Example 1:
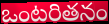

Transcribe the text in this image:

ఒంటరితనం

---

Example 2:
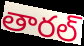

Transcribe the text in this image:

తారల్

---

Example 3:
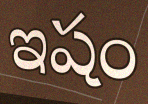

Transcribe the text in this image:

ఇషం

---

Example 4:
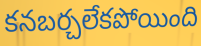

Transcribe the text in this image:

కనబర్చలేకపోయింది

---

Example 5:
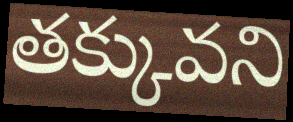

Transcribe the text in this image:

తక్కువని